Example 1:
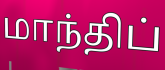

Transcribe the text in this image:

மாந்திப்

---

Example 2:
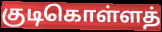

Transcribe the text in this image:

குடிகொள்ளத்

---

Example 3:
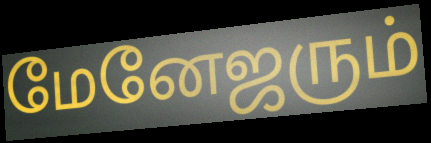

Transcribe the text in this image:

மேனேஜரும்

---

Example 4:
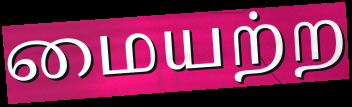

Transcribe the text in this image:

மையற்ற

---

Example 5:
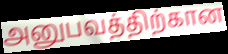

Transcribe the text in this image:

அனுபவத்திற்கான